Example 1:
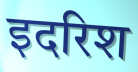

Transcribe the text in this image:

इदरिश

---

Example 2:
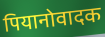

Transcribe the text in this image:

पियानोवादक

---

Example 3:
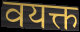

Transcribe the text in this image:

वयक्त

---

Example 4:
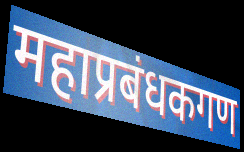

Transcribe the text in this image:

महाप्रबंधकगण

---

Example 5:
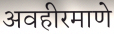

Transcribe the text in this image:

अवहीरमाणे